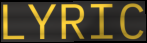
LYRIC